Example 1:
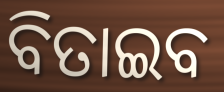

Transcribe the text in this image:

ବିତାଇବ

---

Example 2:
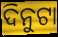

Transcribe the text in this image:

ଦିନୁଟା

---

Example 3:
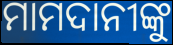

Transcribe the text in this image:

ମାମଦାନୀଙ୍କୁ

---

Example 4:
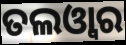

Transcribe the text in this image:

ତଲଓ୍ୱାର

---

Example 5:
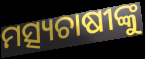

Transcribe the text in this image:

ମତ୍ସ୍ୟଚାଷୀଙ୍କୁ